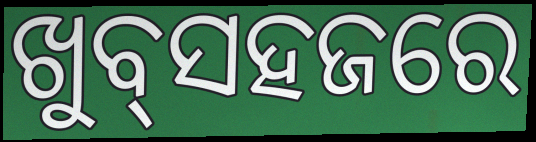
ଖୁବ୍‌ସହଜରେ